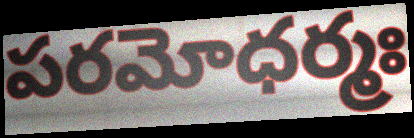
పరమోధర్మః